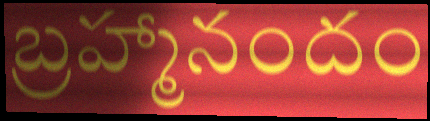
బ్రహ్మానందం